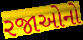
રજાઓનો